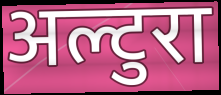
अल्टुरा